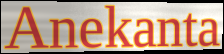
Anekanta